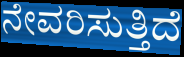
ನೇವರಿಸುತ್ತಿದೆ